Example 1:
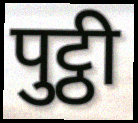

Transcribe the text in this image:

पुट्ठी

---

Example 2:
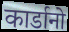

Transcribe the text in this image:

कार्डानो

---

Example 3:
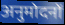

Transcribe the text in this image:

अनुमोदनों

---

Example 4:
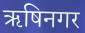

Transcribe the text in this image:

ऋषिनगर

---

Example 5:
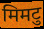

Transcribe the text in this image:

मिमटु